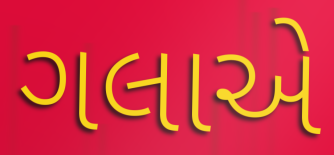
ગલાએ